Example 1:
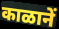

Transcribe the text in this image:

काळानें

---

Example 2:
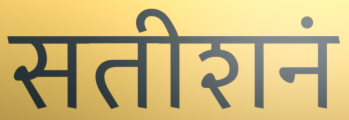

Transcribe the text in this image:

सतीशनं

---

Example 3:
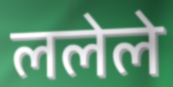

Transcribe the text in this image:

ललेले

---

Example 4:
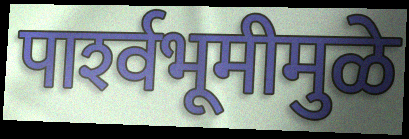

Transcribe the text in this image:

पार्श्‍वभूमीमुळे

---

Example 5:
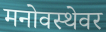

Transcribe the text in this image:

मनोवस्थेवर